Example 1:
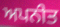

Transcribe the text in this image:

ਅਪਨੀਤ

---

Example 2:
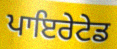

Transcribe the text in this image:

ਪਾਇਰੇਟੇਡ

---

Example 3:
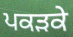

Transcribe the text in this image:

ਪਕੜਕੇ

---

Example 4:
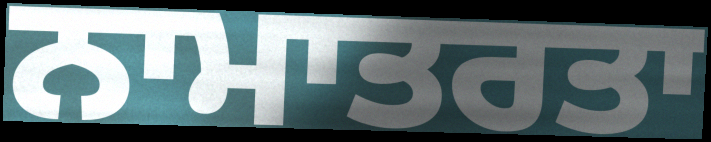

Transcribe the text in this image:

ਨਾਮਾਤਰਤਾ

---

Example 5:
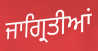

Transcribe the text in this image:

ਜਾਗ੍ਰਿਤੀਆਂ